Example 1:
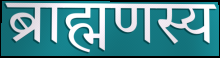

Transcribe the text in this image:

ब्राह्मणस्य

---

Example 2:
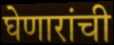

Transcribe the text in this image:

घेणारांची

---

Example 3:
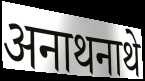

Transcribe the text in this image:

अनाथनाथे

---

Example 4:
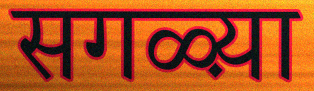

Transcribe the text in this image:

सगळ्य़ा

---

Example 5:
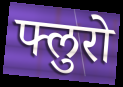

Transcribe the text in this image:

फ्लुरो